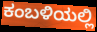
ಕಂಬಳಿಯಲ್ಲಿ